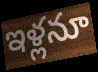
ఇళ్లనూ